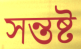
সন্তষ্ট